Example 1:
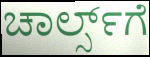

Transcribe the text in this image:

ಚಾರ್ಲ್ಸ್‌ಗೆ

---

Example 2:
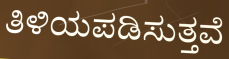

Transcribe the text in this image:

ತಿಳಿಯಪಡಿಸುತ್ತವೆ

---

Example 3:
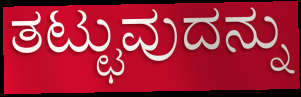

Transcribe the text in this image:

ತಟ್ಟುವುದನ್ನು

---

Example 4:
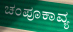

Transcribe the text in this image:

ಚಂಪೂಕಾವ್ಯ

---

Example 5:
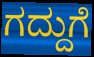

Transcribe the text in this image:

ಗದ್ದುಗೆ